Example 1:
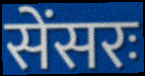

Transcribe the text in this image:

सेंसरः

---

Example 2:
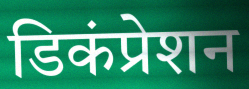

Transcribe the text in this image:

डिकंप्रेशन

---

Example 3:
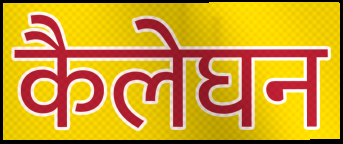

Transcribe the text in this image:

कैलेघन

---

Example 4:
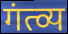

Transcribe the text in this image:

गंत्व्य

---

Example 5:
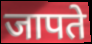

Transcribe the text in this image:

जापते